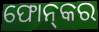
ଫୋନ୍‌କର